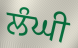
ਲੰਘੀ